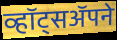
व्हॉट्सॲपने